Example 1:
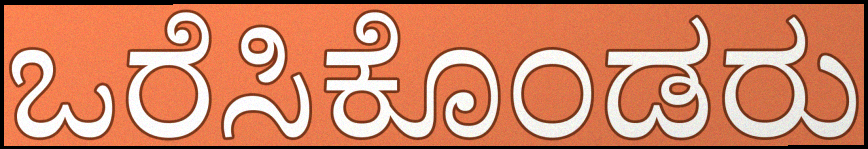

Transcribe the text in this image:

ಒರೆಸಿಕೊಂಡರು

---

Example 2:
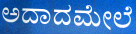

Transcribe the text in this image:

ಅದಾದಮೇಲೆ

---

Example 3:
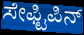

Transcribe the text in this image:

ಸೇಫ್ಟಿಪಿನ್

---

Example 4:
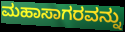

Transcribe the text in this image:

ಮಹಾಸಾಗರವನ್ನು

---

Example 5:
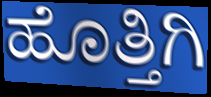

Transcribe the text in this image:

ಹೊತ್ತಿಗಿ